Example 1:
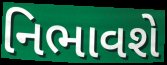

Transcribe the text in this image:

નિભાવશે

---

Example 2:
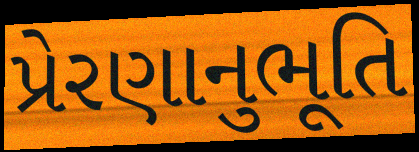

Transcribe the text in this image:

પ્રેરણાનુભૂતિ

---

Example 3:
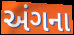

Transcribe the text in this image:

અંગના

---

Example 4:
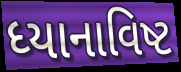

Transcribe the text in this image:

ધ્યાનાવિષ્ટ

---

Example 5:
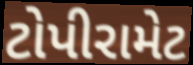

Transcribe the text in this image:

ટોપીરામેટ